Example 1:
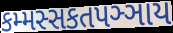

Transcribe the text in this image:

કમ્મસ્સકતપઞ્ઞાય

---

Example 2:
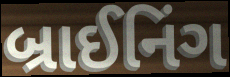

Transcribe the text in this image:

બ્રાઈનિંગ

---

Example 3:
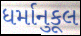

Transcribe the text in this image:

ધર્માનુકૂલ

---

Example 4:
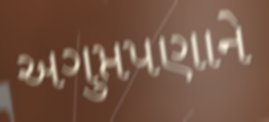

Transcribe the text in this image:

અગુપ્તપણાને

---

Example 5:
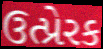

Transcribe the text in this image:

ઉત્પ્રેરક